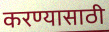
करण्यासाठी